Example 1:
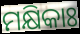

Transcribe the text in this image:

ମକ୍ଷିକାଃ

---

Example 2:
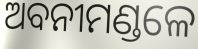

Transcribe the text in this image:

ଅବନୀମଣ୍ଡଳେ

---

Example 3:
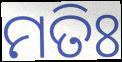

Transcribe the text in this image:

ମତିଃ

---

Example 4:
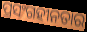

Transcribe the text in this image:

ପ୍ରସଂଗହୀନତାର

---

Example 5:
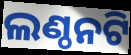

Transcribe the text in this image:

ଲଣ୍ଠନଟି